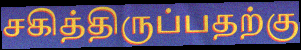
சகித்திருப்பதற்கு